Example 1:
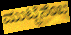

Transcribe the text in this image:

ಮುಟ್ಟೆನೆಂಬ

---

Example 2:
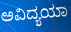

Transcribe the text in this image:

ಅವಿದ್ಯಯಾ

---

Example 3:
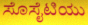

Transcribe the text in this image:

ಸೊಸೈಟಿಯು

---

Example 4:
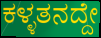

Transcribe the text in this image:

ಕಳ್ಳತನದ್ದೇ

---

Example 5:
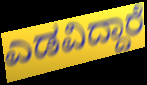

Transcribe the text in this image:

ಎಡವಿದ್ದಾರೆ